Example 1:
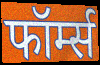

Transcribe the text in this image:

फॉर्म्स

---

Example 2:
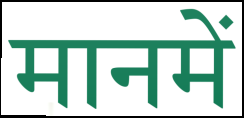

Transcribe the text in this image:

मानमें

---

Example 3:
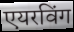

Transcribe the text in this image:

एयरविंग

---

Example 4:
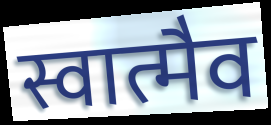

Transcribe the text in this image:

स्वात्मैव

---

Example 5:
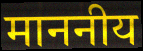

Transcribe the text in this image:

माननीय